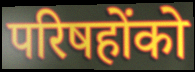
परिषहोंको